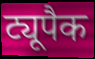
ट्यूपैक